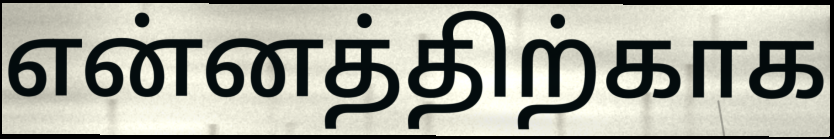
என்னத்திற்காக